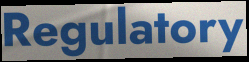
Regulatory